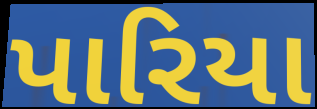
પારિયા